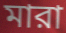
মারা